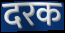
दरक